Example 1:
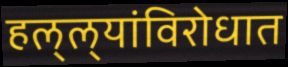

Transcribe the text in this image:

हल्ल्यांविरोधात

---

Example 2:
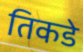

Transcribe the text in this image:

तिकडे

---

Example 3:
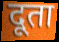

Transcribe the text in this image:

दूता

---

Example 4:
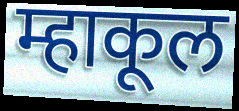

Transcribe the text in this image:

म्हाकूल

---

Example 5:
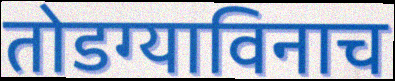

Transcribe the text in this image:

तोडग्याविनाच